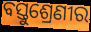
ବସ୍ତୁଶ୍ରେଣୀର